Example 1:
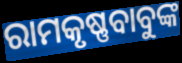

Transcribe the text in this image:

ରାମକୃଷ୍ଣବାବୁଙ୍କ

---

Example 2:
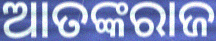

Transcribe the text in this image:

ଆତଙ୍କରାଜ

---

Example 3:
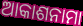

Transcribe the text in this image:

ଆକାଶନାମା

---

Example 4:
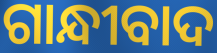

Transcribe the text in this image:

ଗାନ୍ଧୀବାଦ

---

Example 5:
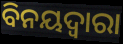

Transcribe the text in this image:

ବିନୟଦ୍ବାରା